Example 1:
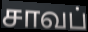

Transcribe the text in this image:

சாவப்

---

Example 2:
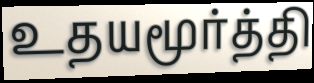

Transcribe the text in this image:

உதயமூர்த்தி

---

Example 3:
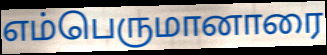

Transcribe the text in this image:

எம்பெருமானாரை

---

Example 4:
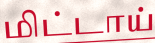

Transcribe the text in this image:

மிட்டாய்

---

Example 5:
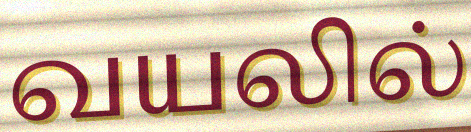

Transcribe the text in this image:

வயலில்